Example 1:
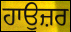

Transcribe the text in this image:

ਹਾਉਜ਼ਰ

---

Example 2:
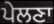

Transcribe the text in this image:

ਪੇਲਣਾ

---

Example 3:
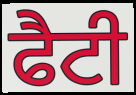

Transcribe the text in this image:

ਫੈਟੀ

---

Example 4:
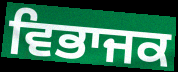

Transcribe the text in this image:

ਵਿਭਾਜਕ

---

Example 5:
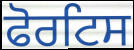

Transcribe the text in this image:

ਫੋਰਟਿਸ